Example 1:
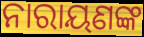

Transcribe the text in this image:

ନାରାୟଣଙ୍କ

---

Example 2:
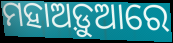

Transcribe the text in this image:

ମହାଅଡ଼ୁଆରେ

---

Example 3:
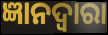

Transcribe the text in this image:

ଜ୍ଞାନଦ୍ଵାରା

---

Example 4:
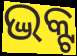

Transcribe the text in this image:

ଦ୍ଭକ୍ଟ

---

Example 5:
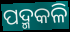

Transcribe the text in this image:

ପଦ୍ମକଳି